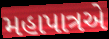
મહાપાત્રએ